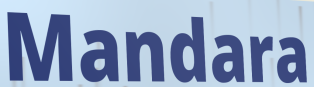
Mandara